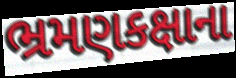
ભ્રમણકક્ષાના